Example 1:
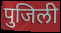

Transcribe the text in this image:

पुजिली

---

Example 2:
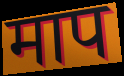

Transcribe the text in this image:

माप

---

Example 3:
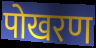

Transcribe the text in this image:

पोखरण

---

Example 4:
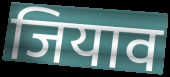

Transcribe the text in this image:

जियाव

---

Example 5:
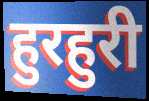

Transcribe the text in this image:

हुरहुरी